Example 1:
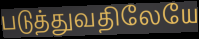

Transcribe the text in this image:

படுத்துவதிலேயே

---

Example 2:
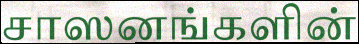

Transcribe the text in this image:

சாஸனங்களின்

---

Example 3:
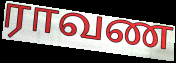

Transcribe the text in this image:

ராவண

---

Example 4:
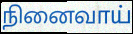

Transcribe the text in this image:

நினைவாய்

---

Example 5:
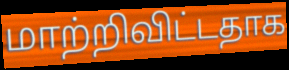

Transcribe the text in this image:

மாற்றிவிட்டதாக